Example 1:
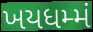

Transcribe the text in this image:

ખયધમ્મં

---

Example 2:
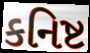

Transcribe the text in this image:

કનિષ્ટ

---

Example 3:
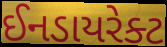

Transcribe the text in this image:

ઈનડાયરેક્ટ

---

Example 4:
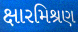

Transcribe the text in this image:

ક્ષારમિશ્રણ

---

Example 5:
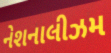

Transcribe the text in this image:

નેશનાલીઝમ